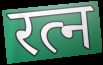
रत्न